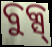
ବୁକ୍ସ୍